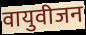
वायुवीजन